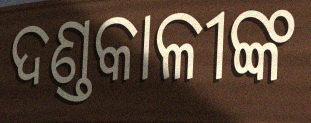
ଦଣ୍ଡକାଳୀଙ୍କ